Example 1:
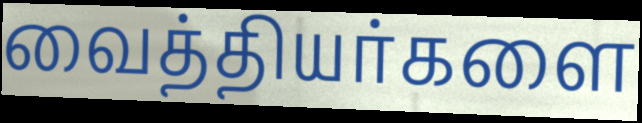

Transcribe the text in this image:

வைத்தியர்களை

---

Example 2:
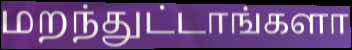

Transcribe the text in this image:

மறந்துட்டாங்களா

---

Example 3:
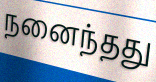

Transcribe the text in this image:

நனைந்தது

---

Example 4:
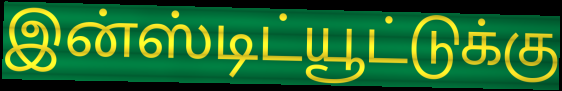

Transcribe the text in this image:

இன்ஸ்டிட்யூட்டுக்கு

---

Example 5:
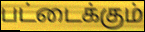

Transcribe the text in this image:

பட்டைக்கும்